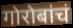
गोरोबांचं